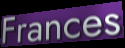
Frances